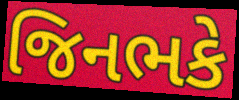
જિનભકે